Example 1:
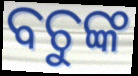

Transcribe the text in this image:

ବଚୁଙ୍କ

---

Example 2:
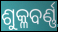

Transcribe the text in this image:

ଶୁକ୍ଳବର୍ଣ୍ଣ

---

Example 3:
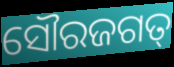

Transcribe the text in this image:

ସୌରଜଗତ୍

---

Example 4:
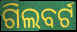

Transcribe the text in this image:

ଗିଲବର୍ଟ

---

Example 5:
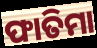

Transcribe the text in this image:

ଫାତିମା